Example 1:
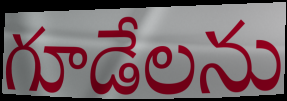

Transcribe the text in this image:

గూడేలను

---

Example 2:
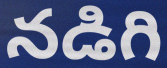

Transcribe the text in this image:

నడిగి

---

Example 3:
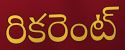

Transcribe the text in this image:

రికరెంట్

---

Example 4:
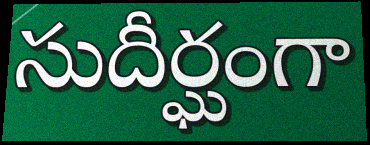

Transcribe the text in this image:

సుదీర్ఘంగా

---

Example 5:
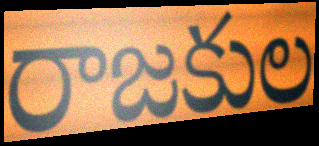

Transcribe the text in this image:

రాజకుల